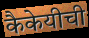
कैकेयीची